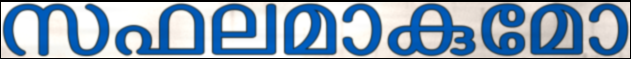
സഫലമാകുമോ